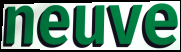
neuve